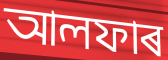
আলফাৰ